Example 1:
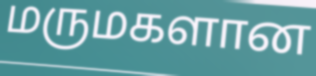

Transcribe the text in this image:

மருமகளான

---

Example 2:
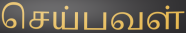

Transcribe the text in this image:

செய்பவள்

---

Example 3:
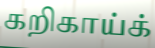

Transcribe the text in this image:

கறிகாய்க்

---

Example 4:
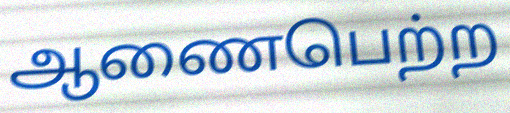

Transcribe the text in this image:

ஆணைபெற்ற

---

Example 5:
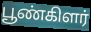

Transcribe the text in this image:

பூண்கிளர்